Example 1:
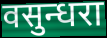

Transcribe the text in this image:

वसुन्धरा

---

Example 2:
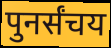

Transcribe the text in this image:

पुनर्संचय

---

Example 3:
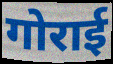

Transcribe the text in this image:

गोराई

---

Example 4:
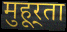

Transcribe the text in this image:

मुहूर्ता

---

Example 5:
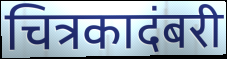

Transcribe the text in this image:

चित्रकादंबरी